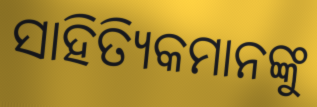
ସାହିତ୍ୟିକମାନଙ୍କୁ